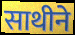
साथीने